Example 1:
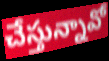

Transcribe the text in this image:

చేస్తున్నావో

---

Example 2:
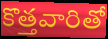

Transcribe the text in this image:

కొత్తవారితో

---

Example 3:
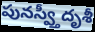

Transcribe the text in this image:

పునస్వ్తీదృశీ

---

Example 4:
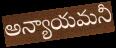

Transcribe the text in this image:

అన్యాయమనీ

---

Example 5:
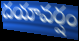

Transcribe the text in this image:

దయావర్షం